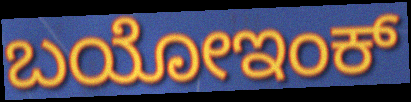
ಬಯೋಇಂಕ್